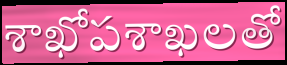
శాఖోపశాఖలతో